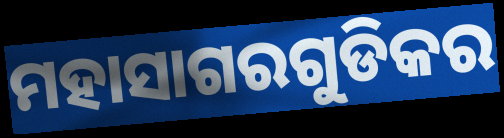
ମହାସାଗରଗୁଡିକର